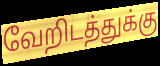
வேறிடத்துக்கு